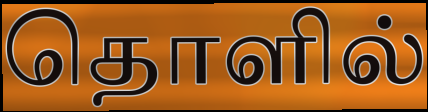
தொளில்